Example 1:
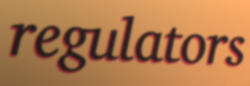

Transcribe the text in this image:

regulators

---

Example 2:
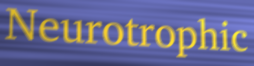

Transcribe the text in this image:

Neurotrophic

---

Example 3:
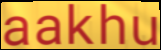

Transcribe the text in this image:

aakhu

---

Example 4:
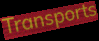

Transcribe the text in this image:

Transports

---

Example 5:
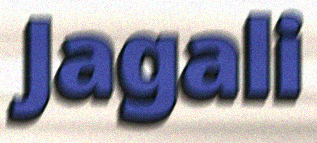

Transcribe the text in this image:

Jagali